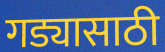
गड्यासाठी